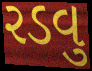
રડવુ